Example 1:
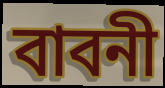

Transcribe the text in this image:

বাবনী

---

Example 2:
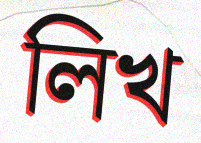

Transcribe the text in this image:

লিখ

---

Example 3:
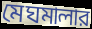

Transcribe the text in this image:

মেঘমালার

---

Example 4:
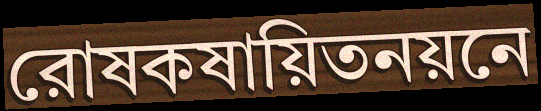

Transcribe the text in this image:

রোষকষায়িতনয়নে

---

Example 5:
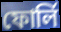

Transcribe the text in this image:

ফোর্লি